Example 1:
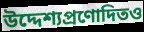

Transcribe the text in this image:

উদ্দেশ্যপ্রণোদিতও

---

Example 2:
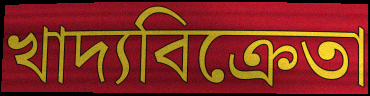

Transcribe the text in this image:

খাদ্যবিক্রেতা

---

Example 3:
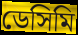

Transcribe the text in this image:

ডেসিমি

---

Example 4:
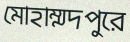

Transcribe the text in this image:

মোহাম্মদপুরে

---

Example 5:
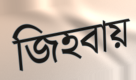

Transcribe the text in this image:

জিহবায়